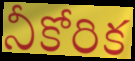
నీకోరిక